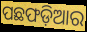
ପଛଫଡ଼ିଆର